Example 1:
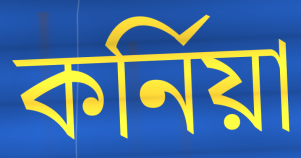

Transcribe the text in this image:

কৰ্নিয়া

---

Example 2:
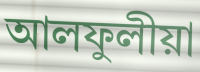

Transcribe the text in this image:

আলফুলীয়া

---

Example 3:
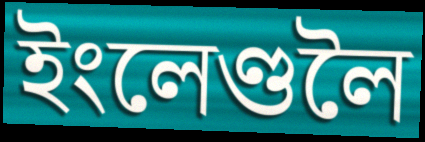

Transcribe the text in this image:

ইংলেণ্ডলৈ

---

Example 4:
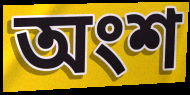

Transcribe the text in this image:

অংশ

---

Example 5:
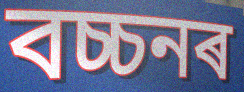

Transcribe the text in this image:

বচ্চনৰ